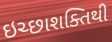
ઇચ્છાશક્તિથી